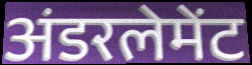
अंडरलेमेंट